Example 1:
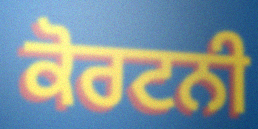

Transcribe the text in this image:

ਕੋਰਟਨੀ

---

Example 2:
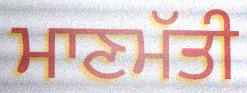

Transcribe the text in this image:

ਮਾਣਮੱਤੀ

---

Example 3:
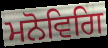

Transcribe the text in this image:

ਮਨੋਵਿਗਿ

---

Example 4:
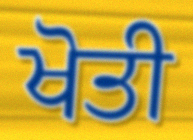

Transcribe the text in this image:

ਖੋਤੀ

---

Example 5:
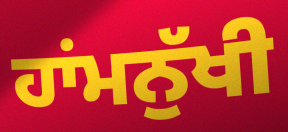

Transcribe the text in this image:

ਹਾਂਮਨੁੱਖੀ